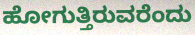
ಹೋಗುತ್ತಿರುವರೆಂದು